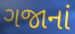
ગજાનાં